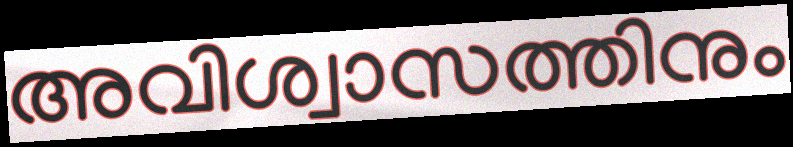
അവിശ്വാസത്തിനും